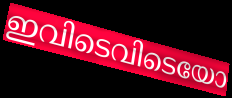
ഇവിടെവിടെയോ